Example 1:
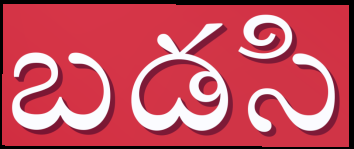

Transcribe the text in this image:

బడసి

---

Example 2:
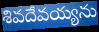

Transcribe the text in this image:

శివదేవయ్యను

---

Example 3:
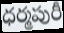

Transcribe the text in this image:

ధర్మపురీ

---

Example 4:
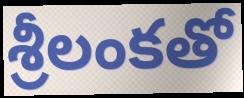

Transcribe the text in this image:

శ్రీలంకతో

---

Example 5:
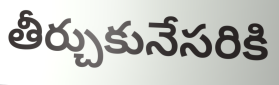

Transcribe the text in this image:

తీర్చుకునేసరికి